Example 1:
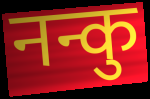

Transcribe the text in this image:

नन्कु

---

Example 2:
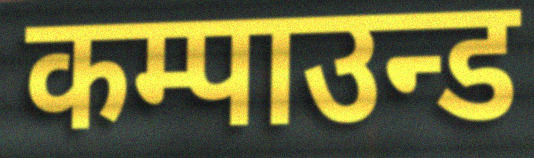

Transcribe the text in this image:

कम्पाउन्ड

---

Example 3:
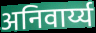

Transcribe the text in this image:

अनिवार्य्य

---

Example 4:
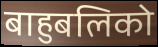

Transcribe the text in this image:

बाहुबलिको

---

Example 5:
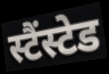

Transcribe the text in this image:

स्टैंस्टेड